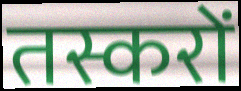
तस्करों